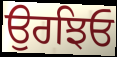
ਉਰਝਿਓ